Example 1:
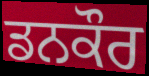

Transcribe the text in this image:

ਡਨਕੌਰ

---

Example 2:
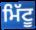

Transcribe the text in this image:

ਮਿੱਟੂ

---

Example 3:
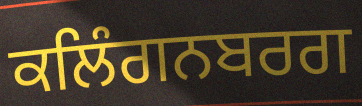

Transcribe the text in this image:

ਕਲਿੰਗਨਬਰਗ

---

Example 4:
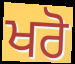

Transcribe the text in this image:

ਖਰੋ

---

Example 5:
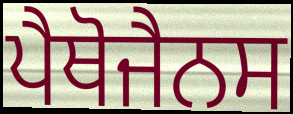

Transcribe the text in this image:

ਪੈਥੋਜੈਨਸ